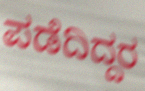
ಪಡೆದಿದ್ದರ